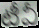
టీవీ